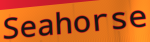
Seahorse